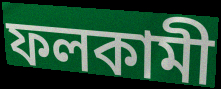
ফলকামী